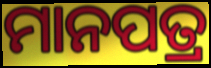
ମାନପତ୍ର